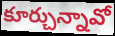
కూర్చున్నావో